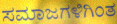
ಸಮಾಜಗಳಿಗಿಂತ